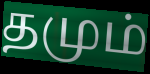
தமும்